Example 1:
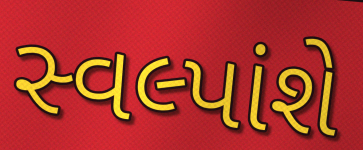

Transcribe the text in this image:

સ્વલ્પાંશે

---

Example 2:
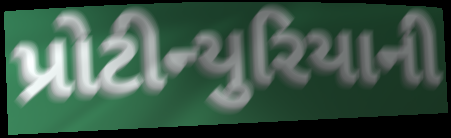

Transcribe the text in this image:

પ્રોટીન્યુરિયાની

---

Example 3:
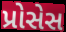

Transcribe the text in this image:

પ્રોસેસ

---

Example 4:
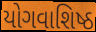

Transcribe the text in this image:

યોગવાશિષ્ઠ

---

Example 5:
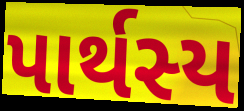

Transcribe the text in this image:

પાર્થસ્ય